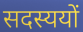
सदस्ययों